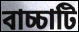
বাচ্চাটি